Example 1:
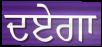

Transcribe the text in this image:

ਦਏਗਾ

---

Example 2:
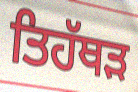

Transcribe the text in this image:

ਤਿਹੱਥੜ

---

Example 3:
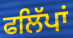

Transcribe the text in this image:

ਫਲਿੱਪਾਂ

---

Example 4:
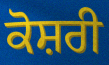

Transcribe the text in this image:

ਕੋਸ਼ਰੀ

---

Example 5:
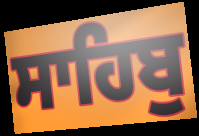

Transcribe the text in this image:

ਸਾਹਿਬੁ